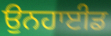
ਉਨਹਾਈਡ